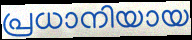
പ്രധാനിയായ